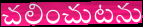
చలించుటను